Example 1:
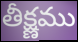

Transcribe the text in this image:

తీక్ష్ణము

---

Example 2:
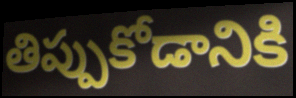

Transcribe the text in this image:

తిప్పుకోడానికి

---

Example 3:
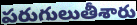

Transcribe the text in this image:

పరుగులుతీశారు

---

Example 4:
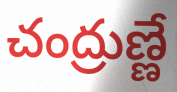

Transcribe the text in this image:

చంద్రుణ్ణే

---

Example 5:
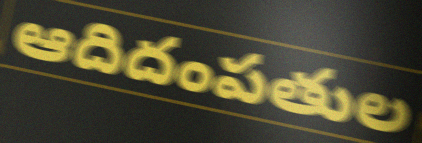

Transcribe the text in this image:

ఆదిదంపతుల